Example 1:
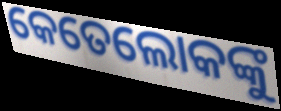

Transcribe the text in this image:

କେତେଲୋକଙ୍କୁ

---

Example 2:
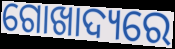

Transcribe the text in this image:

ଗୋଖାଦ୍ୟରେ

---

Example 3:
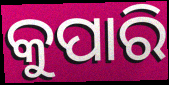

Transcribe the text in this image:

କୁପାରି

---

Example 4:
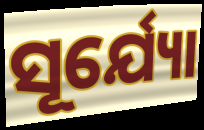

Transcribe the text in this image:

ସୂର୍ଯ୍ୟୋ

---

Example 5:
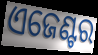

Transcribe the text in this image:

ଏଜେଣ୍ଟର